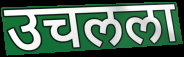
उचलला